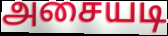
அசையடி